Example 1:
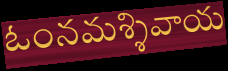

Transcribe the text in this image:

ఓంనమశ్శివాయ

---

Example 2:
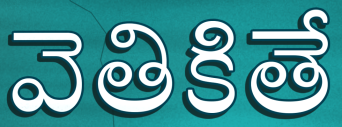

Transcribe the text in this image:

వెతికితే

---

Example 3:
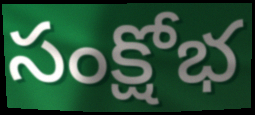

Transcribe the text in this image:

సంక్షోభ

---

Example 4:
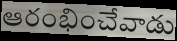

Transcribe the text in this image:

ఆరంభించేవాడు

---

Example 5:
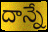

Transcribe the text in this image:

దాన్నే